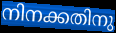
നിനക്കതിനു